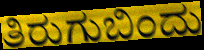
ತಿರುಗುಬಿಂದು